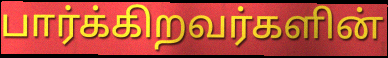
பார்க்கிறவர்களின்